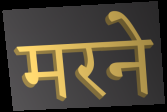
मरने